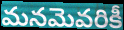
మనమెవరికీ